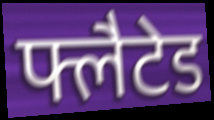
फ्लैटेड